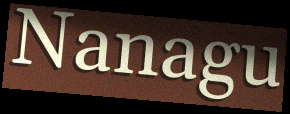
Nanagu